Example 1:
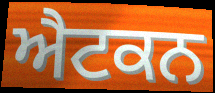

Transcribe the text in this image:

ਐਟਕਨ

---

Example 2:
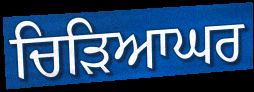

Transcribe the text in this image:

ਚਿੜਿਆਘਰ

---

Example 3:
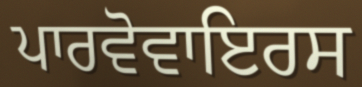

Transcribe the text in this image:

ਪਾਰਵੋਵਾਇਰਸ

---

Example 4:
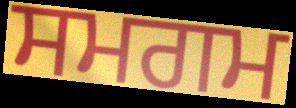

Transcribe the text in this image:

ਸਮਗਮ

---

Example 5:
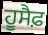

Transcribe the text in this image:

ਹੂਸੈਫ਼